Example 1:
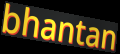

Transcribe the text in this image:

bhantan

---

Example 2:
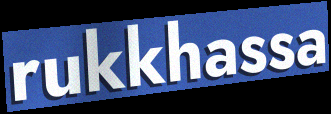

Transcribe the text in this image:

rukkhassa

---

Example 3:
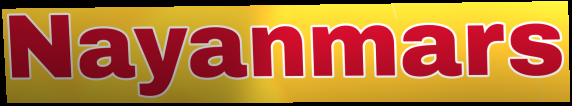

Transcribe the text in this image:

Nayanmars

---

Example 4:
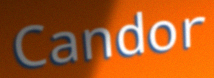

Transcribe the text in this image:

Candor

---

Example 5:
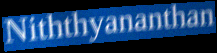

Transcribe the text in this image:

Niththyananthan